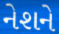
નેશને